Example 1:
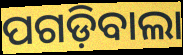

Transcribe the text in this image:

ପଗଡ଼ିବାଲା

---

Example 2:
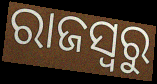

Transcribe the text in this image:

ରାଜସ୍ବରୁ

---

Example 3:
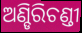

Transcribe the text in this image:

ଅଣ୍ଡିରିଚଣ୍ଡୀ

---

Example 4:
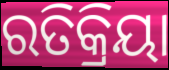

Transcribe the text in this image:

ରତିକ୍ରିୟା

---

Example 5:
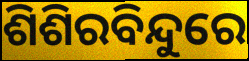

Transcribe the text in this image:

ଶିଶିରବିନ୍ଦୁରେ